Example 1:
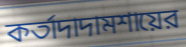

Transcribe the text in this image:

কর্তাদাদামশায়ের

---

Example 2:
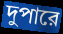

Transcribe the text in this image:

দুপারে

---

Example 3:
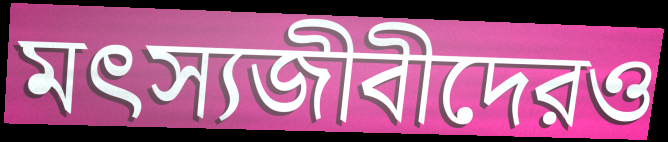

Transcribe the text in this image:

মৎস্যজীবীদেরও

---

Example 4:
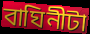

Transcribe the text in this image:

বাঘিনীটা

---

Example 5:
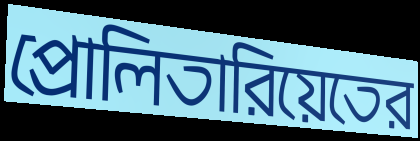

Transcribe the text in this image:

প্রোলিতারিয়েতের